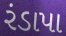
રંડાપા